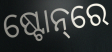
ଷ୍ଟୋନ୍‌ରେ